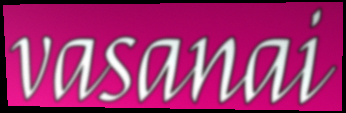
vasanai